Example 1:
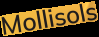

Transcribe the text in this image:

Mollisols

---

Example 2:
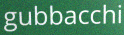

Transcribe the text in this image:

gubbacchi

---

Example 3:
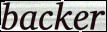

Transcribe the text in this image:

backer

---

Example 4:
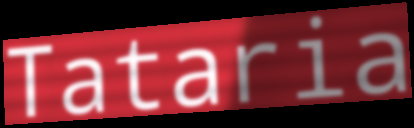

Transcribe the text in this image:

Tataria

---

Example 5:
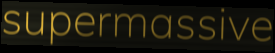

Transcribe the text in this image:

supermassive